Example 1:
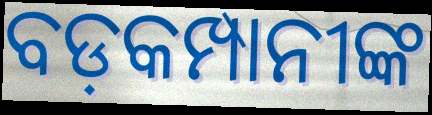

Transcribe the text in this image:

ବଡ଼କମ୍ପାନୀଙ୍କ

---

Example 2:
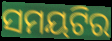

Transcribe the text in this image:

ସମୟଟିର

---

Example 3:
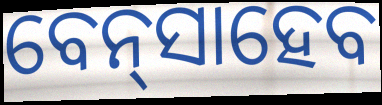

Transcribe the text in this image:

ବେନ୍‌ସାହେବ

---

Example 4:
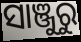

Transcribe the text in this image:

ସାଞ୍ଜୁରୁ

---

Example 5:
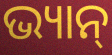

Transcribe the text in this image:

ଭ୍ୟାନ୍